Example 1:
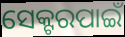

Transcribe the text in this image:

ସେକ୍ଟରପାଇଁ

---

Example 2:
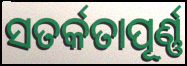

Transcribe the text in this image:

ସତର୍କତାପୂର୍ଣ୍ଣ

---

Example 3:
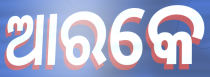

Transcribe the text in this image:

ଆରକେ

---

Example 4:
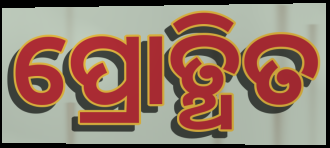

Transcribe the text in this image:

ପ୍ରୋତ୍ଥିତ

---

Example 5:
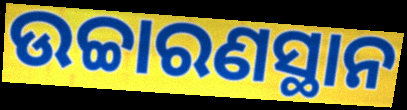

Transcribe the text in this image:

ଉଚ୍ଚାରଣସ୍ଥାନ